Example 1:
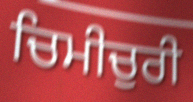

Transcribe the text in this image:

ਚਿਮੀਚੁਰੀ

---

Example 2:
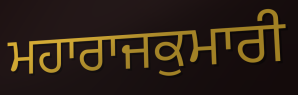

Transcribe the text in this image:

ਮਹਾਰਾਜਕੁਮਾਰੀ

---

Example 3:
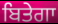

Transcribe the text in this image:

ਬਿਤੇਗਾ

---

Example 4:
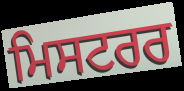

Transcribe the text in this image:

ਮਿਸਟਰਰ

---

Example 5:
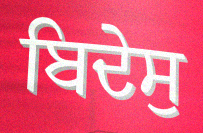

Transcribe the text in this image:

ਬਿਦੇਸੁ